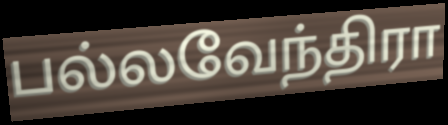
பல்லவேந்திரா